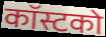
कॉस्टको